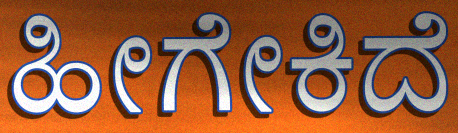
ಹೀಗೇಕಿದೆ